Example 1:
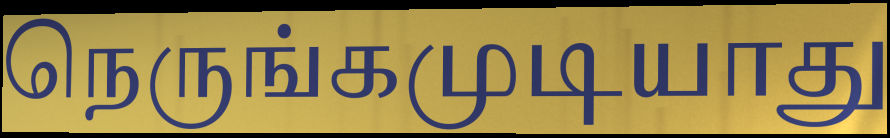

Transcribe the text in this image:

நெருங்கமுடியாது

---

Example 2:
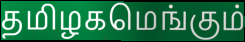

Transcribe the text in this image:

தமிழகமெங்கும்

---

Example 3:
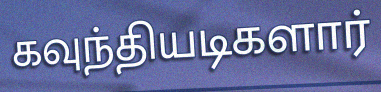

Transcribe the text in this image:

கவுந்தியடிகளார்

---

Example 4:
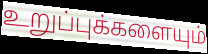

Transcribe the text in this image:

உறுப்புக்களையும்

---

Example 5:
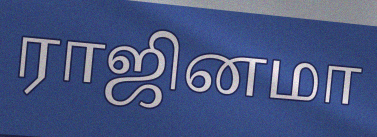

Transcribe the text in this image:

ராஜினமா